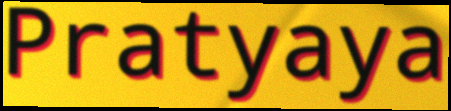
Pratyaya